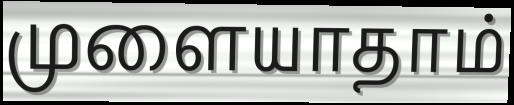
முளையாதாம்